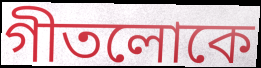
গীতলোকে